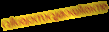
വിശ്വാസവുമായിരുന്നു